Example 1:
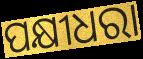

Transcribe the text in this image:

ପକ୍ଷୀଧରା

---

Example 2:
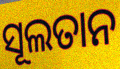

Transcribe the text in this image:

ସୂଲତାନ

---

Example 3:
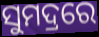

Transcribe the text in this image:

ସୁମଦ୍ରରେ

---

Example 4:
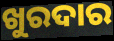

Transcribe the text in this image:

ଖୁରଦାର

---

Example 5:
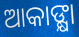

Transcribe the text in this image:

ଆକାଙ୍କ୍ଷା